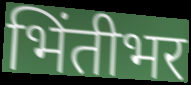
भिंतीभर